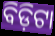
ବିଡ଼ିଟା